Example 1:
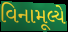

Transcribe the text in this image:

વિનામૂલ્યે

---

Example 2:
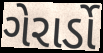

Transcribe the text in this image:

ગેરાર્ડો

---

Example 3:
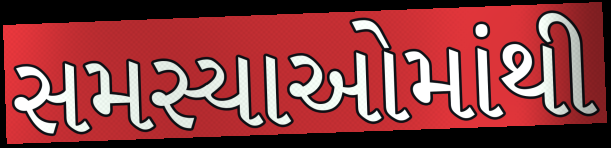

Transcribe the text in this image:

સમસ્યાઓમાંથી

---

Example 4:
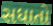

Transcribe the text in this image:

સધાતો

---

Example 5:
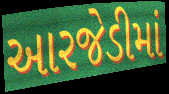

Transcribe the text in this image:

આરજેડીમાં